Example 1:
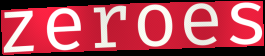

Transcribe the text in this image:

zeroes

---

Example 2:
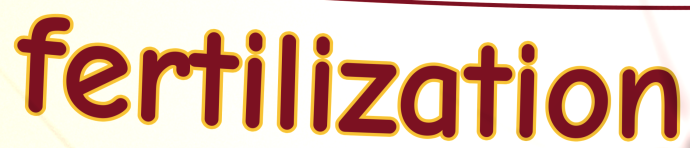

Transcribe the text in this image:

fertilization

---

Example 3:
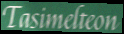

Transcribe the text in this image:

Tasimelteon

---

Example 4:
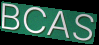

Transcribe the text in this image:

BCAS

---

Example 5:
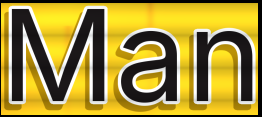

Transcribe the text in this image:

Man